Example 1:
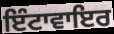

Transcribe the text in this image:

ਇੰਟਾਵਾਇਰ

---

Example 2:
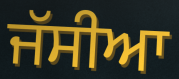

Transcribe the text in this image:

ਜੱਸੀਆ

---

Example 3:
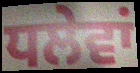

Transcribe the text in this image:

ਧਲੇਵਾਂ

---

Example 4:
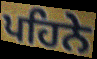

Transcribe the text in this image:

ਪਹਿਨੇ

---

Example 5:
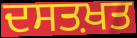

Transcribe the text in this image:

ਦਸਤ਼ਖਤ